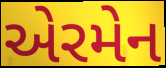
એરમેન